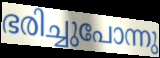
ഭരിച്ചുപോന്നു